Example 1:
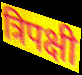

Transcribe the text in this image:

त्रिपक्षी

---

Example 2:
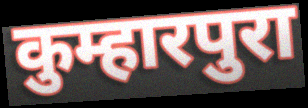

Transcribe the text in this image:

कुम्हारपुरा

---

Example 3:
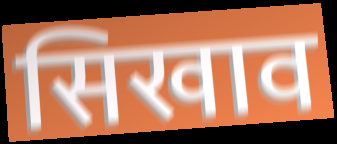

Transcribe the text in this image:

सिखाव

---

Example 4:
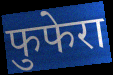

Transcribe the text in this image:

फुफेरा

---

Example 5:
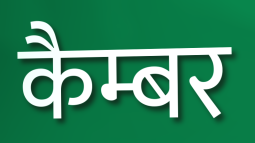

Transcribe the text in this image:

कैम्बर